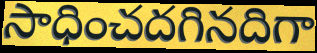
సాధించదగినదిగా